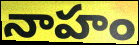
నాహం